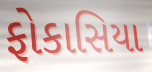
ફોકાસિયા